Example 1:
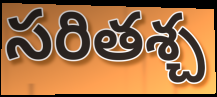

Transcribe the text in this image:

సరితశ్చ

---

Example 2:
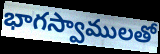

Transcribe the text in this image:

భాగస్వాములతో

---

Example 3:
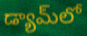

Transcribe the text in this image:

డ్యామ్‌లో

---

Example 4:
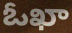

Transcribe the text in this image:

ఓఖా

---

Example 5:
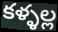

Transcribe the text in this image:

కళ్ళల్ల